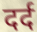
दर्द